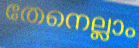
തേനെല്ലാം